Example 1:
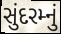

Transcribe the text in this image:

સુંદરમ્નું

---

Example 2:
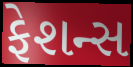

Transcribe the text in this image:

ફેશન્સ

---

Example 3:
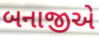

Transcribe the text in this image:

બનાજીએ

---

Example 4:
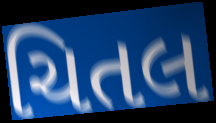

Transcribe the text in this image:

ચિતલ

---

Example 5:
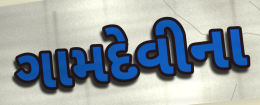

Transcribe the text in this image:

ગામદેવીના